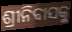
ଶ୍ରୀନିବାସକୁ